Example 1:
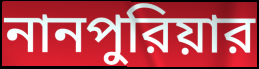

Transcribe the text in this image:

নানপুরিয়ার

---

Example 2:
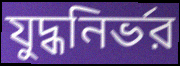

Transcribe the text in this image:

যুদ্ধনির্ভর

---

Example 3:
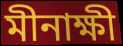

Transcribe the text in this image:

মীনাক্ষী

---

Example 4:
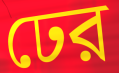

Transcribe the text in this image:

ঢের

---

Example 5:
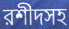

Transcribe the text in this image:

রশীদসহ